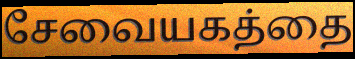
சேவையகத்தை